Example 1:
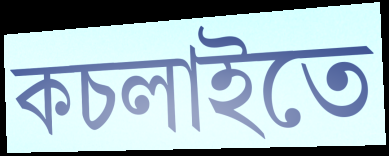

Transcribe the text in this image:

কচলাইতে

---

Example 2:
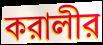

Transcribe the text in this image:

করালীর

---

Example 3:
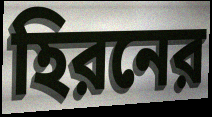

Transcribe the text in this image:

হিরনের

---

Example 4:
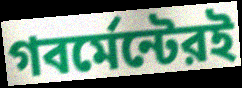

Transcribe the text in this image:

গবর্মেন্টেরই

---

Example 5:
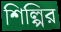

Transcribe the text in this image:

শিল্পির